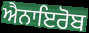
ਐਨਾਇਰੋਬ